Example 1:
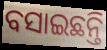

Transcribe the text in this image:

ବସାଇଛନ୍ତି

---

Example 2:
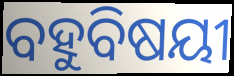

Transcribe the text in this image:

ବହୁବିଷୟୀ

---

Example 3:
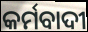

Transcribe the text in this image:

କର୍ମବାଦୀ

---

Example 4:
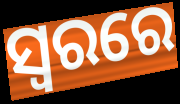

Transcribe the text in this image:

ସ୍ବରରେ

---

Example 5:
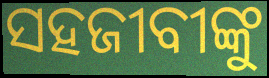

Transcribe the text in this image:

ସହଜୀବୀଙ୍କୁ